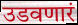
उडवणारं